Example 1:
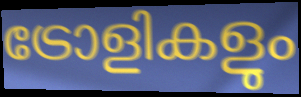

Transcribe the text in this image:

ട്രോളികളും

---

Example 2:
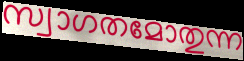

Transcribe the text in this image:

സ്വാഗതമോതുന്ന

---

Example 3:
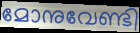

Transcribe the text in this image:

മോനുവേണ്ടി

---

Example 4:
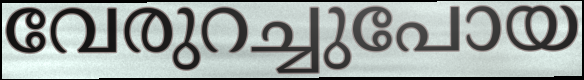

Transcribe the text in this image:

വേരുറച്ചുപോയ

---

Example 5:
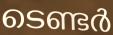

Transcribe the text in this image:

ടെണ്ടർ